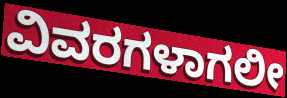
ವಿವರಗಳಾಗಲೀ